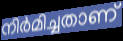
നിർമിച്ചതാണ്